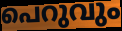
പെറുവും